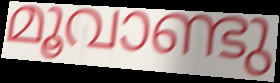
മൂവാണ്ടു